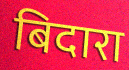
बिदारा